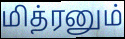
மித்ரனும்